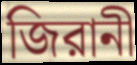
জিরানী